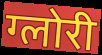
ग्लोरी